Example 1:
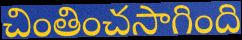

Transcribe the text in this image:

చింతించసాగింది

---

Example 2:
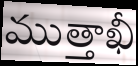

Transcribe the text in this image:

ముత్తాఖీ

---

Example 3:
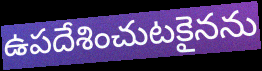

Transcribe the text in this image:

ఉపదేశించుటకైనను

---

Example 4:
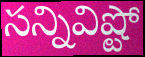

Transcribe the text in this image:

సన్నివిష్టో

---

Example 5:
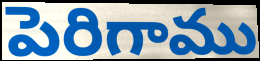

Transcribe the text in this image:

పెరిగాము